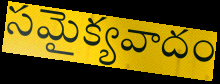
సమైక్యవాదం